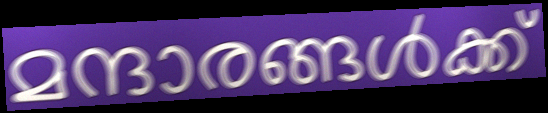
മന്ദാരങ്ങൾക്ക്